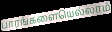
பாரங்களையெல்லாம்